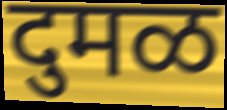
दुमळ